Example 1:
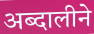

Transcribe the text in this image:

अब्दालीने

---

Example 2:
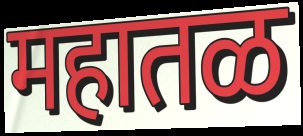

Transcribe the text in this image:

महातळ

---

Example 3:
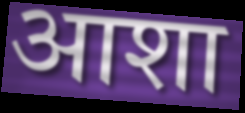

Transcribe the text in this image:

आशा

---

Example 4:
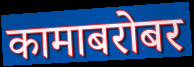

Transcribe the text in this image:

कामाबरोबर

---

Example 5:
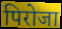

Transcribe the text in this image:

पिरोजा